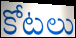
కోటలు